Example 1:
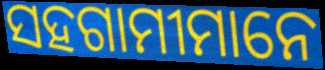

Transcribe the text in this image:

ସହଗାମୀମାନେ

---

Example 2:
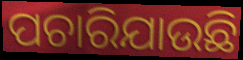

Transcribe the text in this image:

ପଚାରିଯାଉଛି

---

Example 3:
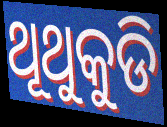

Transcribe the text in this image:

ଥୂଥୁକୁଡି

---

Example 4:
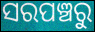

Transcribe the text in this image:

ସରପଞ୍ଚରୁ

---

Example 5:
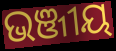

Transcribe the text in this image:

ଭଞ୍ଜୀୟ